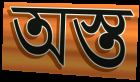
অস্ত